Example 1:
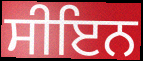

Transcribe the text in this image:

ਸੀਇਨ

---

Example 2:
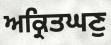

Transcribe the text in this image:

ਅਕ੍ਰਿਤਘਣੁ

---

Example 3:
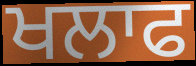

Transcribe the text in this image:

ਖਲਾਫ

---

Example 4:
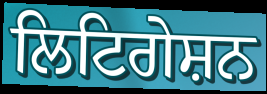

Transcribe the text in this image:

ਲਿਟਿਗੇਸ਼ਨ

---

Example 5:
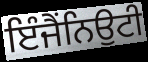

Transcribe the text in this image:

ਇੰਜੈਂਨਿਉਟੀ